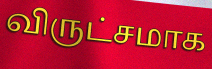
விருட்சமாக